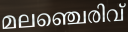
മലഞ്ചെരിവ്